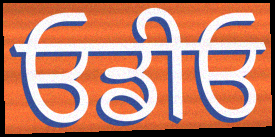
ਓਡੀਓ